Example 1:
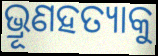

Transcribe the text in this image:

ଭ୍ରୂଣହତ୍ୟାକୁ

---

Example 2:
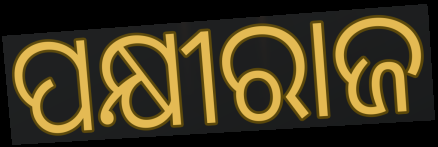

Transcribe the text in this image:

ପକ୍ଷୀରାଜ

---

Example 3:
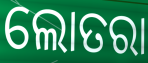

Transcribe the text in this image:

ଲୋତରା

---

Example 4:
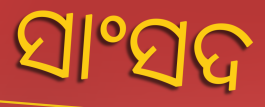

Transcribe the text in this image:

ସାଂସଦ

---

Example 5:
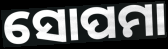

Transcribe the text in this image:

ସୋପମା